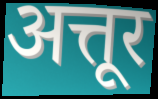
अत्तूर